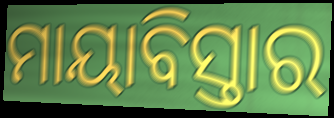
ମାୟାବିସ୍ତାର